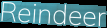
Reindeer